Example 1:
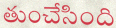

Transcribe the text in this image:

తుంచేసింది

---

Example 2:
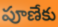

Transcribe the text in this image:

పూణేకు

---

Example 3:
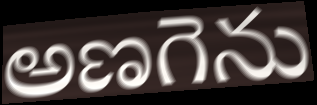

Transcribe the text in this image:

అణగెను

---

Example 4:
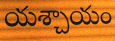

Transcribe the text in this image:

యశ్చాయం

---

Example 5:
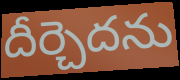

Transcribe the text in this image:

దీర్చెదను